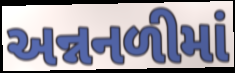
અન્નનળીમાં